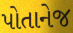
પોતાનેજ